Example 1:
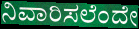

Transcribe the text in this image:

ನಿವಾರಿಸಲೆಂದೇ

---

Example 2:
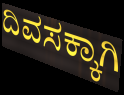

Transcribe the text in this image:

ದಿವಸಕ್ಕಾಗಿ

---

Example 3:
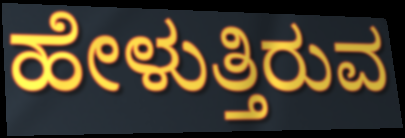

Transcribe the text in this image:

ಹೇಳುತ್ತಿರುವ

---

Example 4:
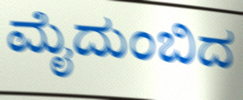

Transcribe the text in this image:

ಮೈದುಂಬಿದ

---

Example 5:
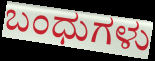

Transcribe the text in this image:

ಬಂಧುಗಳು